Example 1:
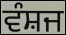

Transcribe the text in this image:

ਵੰਸ਼ਜ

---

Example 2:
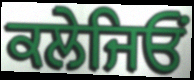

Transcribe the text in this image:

ਕਲੇਜਿਓਂ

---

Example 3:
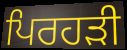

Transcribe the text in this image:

ਪਿਰਹੜੀ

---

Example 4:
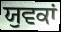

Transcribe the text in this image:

ਯੁਵਕਾਂ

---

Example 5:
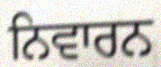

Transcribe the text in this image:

ਨਿਵਾਰਨ